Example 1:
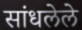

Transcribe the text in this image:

सांधलेले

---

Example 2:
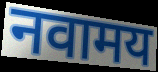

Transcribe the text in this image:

नवामय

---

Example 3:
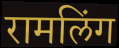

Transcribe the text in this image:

रामलिंग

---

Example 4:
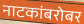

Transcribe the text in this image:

नाटकांबरोबर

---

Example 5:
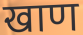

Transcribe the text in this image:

खाण